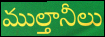
ముల్తానీలు